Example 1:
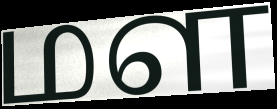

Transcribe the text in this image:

மள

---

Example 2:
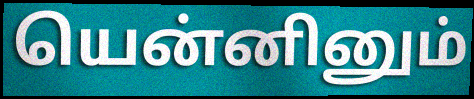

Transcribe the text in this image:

யென்னினும்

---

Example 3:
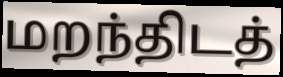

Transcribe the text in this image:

மறந்திடத்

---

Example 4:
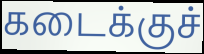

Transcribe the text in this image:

கடைக்குச்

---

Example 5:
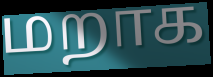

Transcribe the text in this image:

மறாக